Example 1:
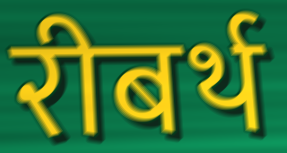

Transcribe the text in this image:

रीबर्थ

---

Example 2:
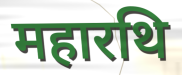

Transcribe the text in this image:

महारथि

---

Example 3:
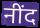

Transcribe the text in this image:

नींद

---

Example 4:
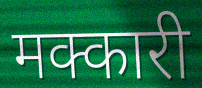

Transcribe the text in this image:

मक्कारी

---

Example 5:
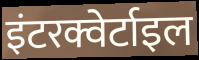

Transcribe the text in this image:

इंटरक्वेर्टाइल